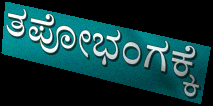
ತಪೋಭಂಗಕ್ಕೆ